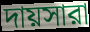
দায়সারা